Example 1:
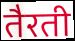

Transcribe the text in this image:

तैरती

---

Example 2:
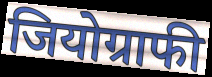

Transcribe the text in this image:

जियोग्राफी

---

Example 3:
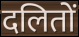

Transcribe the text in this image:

दलितों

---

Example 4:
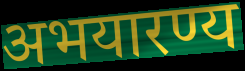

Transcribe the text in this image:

अभयारण्य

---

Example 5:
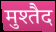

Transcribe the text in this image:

मुश्तैद